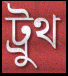
ট্রুথ